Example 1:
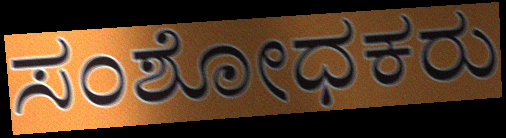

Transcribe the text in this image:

ಸಂಶೋಧಕರು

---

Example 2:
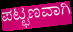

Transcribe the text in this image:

ಪಟ್ಟಣವಾಗಿ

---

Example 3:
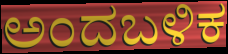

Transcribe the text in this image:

ಅಂದಬಳಿಕ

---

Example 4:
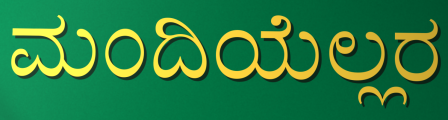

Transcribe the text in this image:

ಮಂದಿಯೆಲ್ಲರ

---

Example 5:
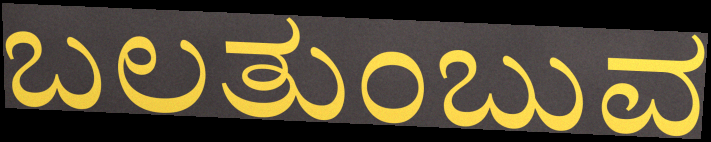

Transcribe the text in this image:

ಬಲತುಂಬುವ